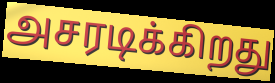
அசரடிக்கிறது